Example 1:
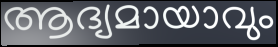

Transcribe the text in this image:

ആദ്യമായാവും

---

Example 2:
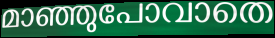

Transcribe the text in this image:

മാഞ്ഞുപോവാതെ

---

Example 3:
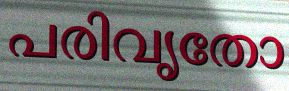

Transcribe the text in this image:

പരിവൃതോ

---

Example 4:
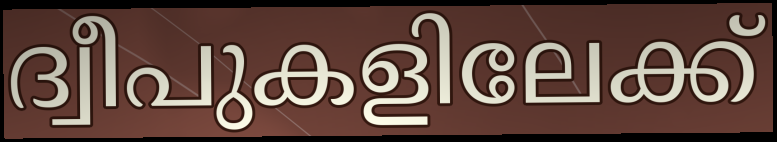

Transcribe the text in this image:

ദ്വീപുകളിലേക്ക്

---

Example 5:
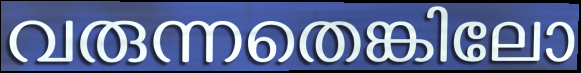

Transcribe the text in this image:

വരുന്നതെങ്കിലോ